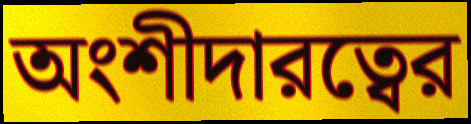
অংশীদারত্বের